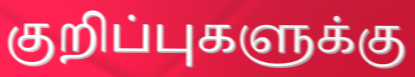
குறிப்புகளுக்கு